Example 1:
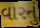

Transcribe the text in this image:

વારનું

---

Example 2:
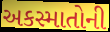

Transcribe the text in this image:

અકસ્માતોની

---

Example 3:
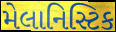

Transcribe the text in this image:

મેલાનિસ્ટિક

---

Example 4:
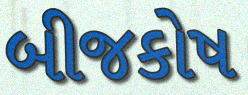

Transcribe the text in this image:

બીજકોષ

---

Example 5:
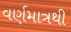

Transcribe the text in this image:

વર્ણમાત્રથી